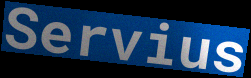
Servius